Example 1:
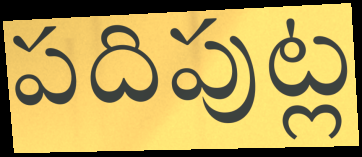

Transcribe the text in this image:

పదిపుట్ల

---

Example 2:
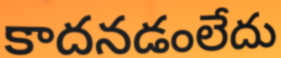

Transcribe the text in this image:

కాదనడంలేదు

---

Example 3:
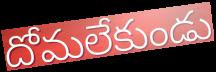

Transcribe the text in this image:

దోమలేకుండు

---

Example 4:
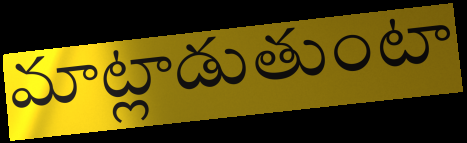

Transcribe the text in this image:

మాట్లాడుతుంటా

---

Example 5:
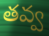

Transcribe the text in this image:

తవ్వ